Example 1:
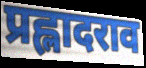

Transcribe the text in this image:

प्रह्लादराव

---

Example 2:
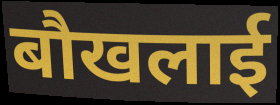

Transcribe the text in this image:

बौखलाई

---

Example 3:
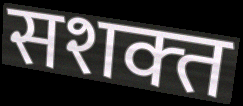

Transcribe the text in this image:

सशक्‍त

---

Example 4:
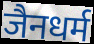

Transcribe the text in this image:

जैनधर्म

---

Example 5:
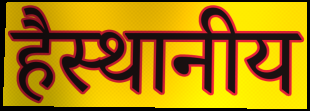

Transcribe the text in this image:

हैस्थानीय